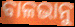
ବାଳଭାନୁ